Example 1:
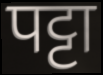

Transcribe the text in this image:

पट्टा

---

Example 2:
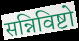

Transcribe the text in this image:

सन्निविष्टो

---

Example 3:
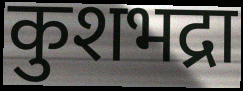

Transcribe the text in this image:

कुशभद्रा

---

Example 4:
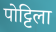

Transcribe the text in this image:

पोट्टिला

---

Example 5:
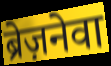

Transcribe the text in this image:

ब्रेज़नेवा